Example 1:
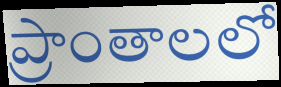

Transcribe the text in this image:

ప్రాంతాలలో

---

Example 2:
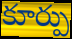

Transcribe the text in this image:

కూర్పు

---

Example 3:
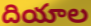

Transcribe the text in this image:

దియాల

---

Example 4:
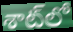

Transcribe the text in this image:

శాట్‌లో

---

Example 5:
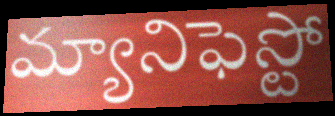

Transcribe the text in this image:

మ్యానిఫెస్టో